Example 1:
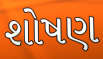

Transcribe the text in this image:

શોષણ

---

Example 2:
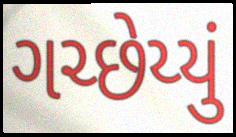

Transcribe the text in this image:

ગચ્છેય્યું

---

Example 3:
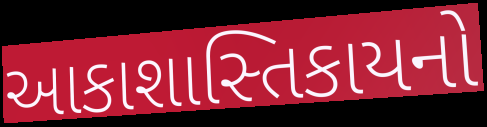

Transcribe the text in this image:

આકાશાસ્તિકાયનો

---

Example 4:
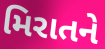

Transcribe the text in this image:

મિરાતને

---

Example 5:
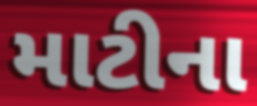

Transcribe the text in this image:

માટીના